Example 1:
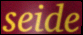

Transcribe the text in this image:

seide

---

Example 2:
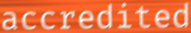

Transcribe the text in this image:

accredited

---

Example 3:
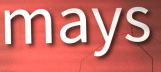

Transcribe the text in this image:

mays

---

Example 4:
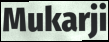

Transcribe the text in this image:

Mukarji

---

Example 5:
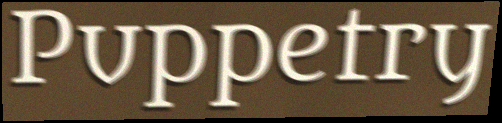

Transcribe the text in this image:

Puppetry